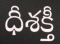
ధీశక్తీ